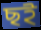
ছই